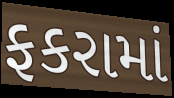
ફકરામાં